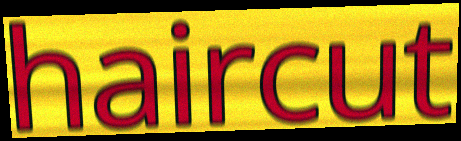
haircut